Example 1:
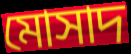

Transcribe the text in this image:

মোসাদ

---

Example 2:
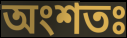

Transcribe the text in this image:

অংশতঃ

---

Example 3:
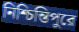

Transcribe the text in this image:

নিশ্চিন্তিপুরে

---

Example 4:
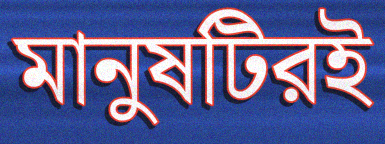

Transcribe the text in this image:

মানুষটিরই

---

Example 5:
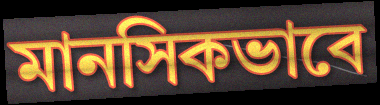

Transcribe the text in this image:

মানসিকভাবে